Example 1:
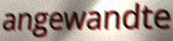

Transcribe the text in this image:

angewandte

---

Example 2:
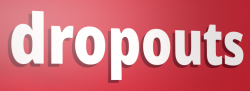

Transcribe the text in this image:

dropouts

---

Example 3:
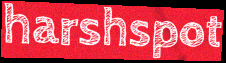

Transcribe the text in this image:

harshspot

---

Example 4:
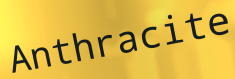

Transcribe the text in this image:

Anthracite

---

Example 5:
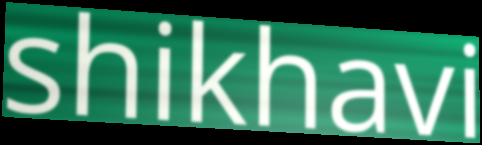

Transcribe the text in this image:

shikhavi